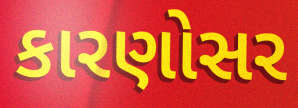
કારણોસર